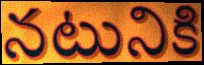
నటునికి